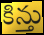
కిన్తు